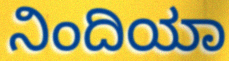
ನಿಂದಿಯಾ